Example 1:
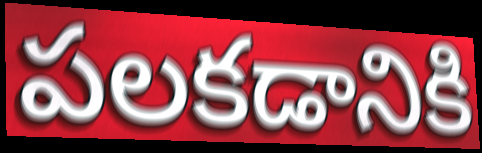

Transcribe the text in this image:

పలకడానికి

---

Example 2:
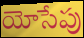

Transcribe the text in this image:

యోసేపు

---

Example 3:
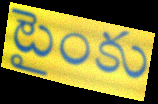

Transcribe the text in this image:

టైంకు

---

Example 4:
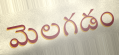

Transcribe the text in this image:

మెలగడం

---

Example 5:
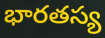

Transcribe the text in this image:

భారతస్య